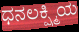
ಧನಲಕ್ಷ್ಮಿಯ